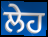
ਲੇਹ